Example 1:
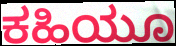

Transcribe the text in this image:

ಕಹಿಯೂ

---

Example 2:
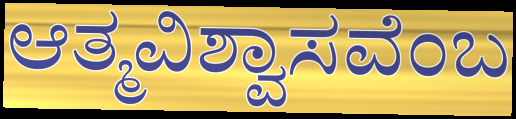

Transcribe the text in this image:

ಆತ್ಮವಿಶ್ವಾಸವೆಂಬ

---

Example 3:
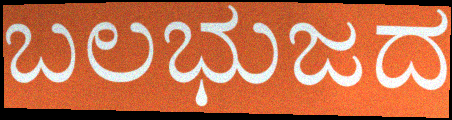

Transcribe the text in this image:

ಬಲಭುಜದ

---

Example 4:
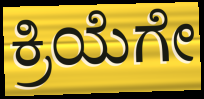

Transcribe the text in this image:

ಕ್ರಿಯೆಗೇ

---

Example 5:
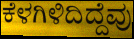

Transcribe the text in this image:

ಕೆಳಗಿಳಿದಿದ್ದೆವು